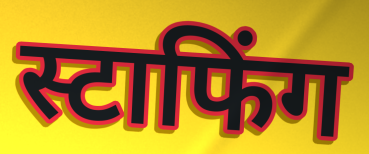
स्टाफिंग